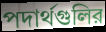
পদার্থগুলির